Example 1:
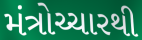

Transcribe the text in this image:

મંત્રોચ્ચારથી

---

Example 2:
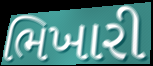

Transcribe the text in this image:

ભિખારી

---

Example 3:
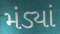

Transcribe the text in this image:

મંડ્યાં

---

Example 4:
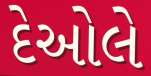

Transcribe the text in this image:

દેઓલે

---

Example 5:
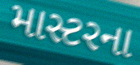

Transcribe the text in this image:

માસ્ટરના